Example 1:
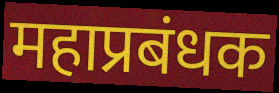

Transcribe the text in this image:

महाप्रबंधक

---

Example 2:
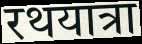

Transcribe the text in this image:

रथयात्रा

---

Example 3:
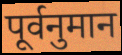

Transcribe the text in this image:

पूर्वनुमान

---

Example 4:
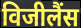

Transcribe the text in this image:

विजीलैंस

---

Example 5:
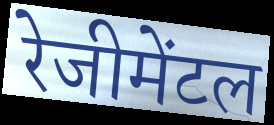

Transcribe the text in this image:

रेजीमेंटल